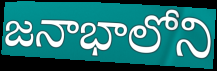
జనాభాలోని